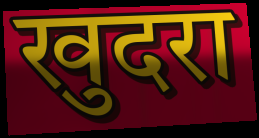
खुदरा